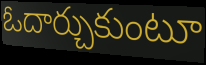
ఓదార్చుకుంటూ